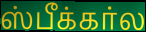
ஸ்பீக்கர்ல